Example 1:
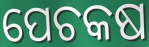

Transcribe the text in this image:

ପେଚକଷ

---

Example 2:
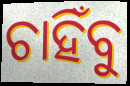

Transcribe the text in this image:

ଚାହିଁବୁ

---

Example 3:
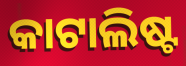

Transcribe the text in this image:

କାଟାଲିଷ୍ଟ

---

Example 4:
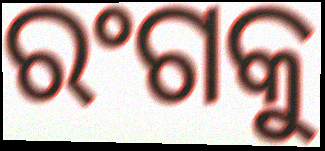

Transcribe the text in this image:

ରଂଗକୁ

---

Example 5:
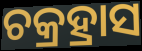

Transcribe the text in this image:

ଚକ୍ରହ୍ରାସ